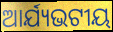
ଆର୍ଯ୍ୟଭଟୀୟ